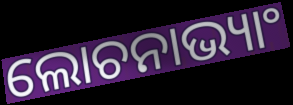
ଲୋଚନାଭ୍ୟାଂ